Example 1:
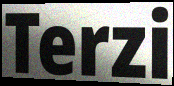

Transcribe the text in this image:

Terzi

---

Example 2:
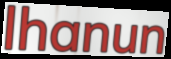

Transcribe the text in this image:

lhanun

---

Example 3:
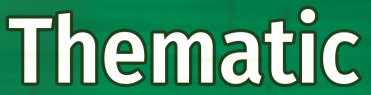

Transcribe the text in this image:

Thematic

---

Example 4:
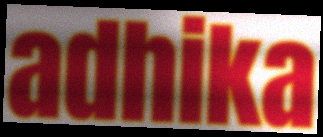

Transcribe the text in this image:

adhika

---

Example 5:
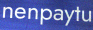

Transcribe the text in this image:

nenpaytu